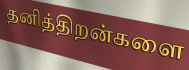
தனித்திறன்களை